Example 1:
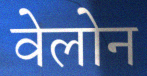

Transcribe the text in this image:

वेलोन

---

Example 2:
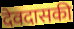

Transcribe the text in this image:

देवदासकी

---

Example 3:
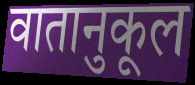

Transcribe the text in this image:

वातानुकूल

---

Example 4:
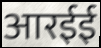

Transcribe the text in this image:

आरईई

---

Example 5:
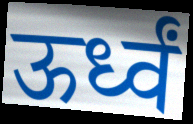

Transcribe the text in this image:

ऊर्ध्वं